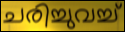
ചരിച്ചുവച്ച്